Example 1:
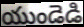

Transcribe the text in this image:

యుండెడి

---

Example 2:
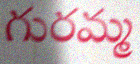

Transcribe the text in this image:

గురమ్మ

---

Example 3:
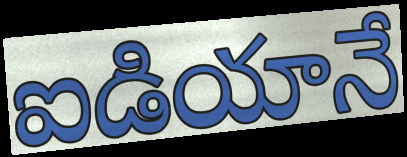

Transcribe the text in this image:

ఐడియానే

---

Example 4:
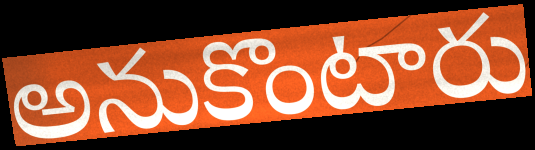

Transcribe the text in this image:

అనుకొంటారు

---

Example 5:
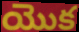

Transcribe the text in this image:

యొక